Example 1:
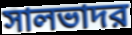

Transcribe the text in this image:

সালভাদর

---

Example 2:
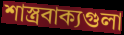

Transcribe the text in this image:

শাস্ত্রবাক্যগুলা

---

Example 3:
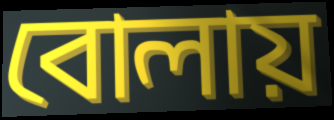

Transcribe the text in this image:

বোলায়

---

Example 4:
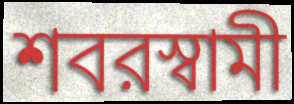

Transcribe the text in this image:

শবরস্বামী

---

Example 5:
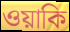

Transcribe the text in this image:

ওয়াকি